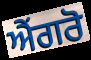
ਐਂਗਰੋ